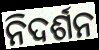
ନିଦର୍ଶନ